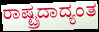
ರಾಷ್ಟ್ರದಾದ್ಯಂತ